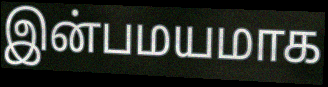
இன்பமயமாக